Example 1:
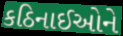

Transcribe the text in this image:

કઠિનાઈઓને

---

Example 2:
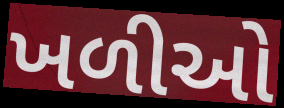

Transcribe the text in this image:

ખળીઓ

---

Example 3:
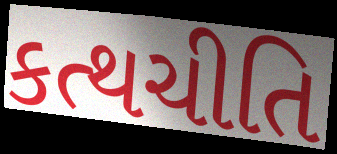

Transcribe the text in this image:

કત્થચીતિ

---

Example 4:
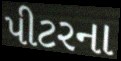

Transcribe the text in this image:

પીટરના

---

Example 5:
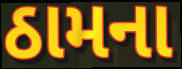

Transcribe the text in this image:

ઠામના